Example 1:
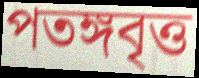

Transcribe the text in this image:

পতঙ্গবৃত্ত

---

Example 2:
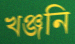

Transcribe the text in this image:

খঞ্জনি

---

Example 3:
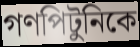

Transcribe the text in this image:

গণপিটুনিকে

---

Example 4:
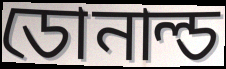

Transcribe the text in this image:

ডোনাল্ড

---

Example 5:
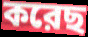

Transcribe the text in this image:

করেছ